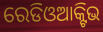
ରେଡିଓଆକ୍ଟିଭ